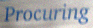
Procuring